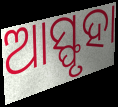
ଆସ୍ଫୃହା